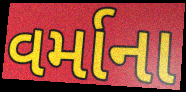
વર્માના